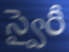
స్వైరీ